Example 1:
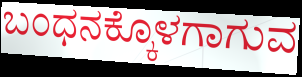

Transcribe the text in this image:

ಬಂಧನಕ್ಕೊಳಗಾಗುವ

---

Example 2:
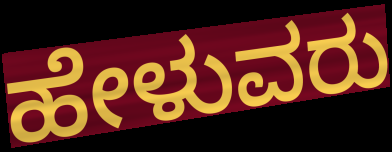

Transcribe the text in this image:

ಹೇಳುವರು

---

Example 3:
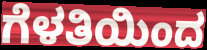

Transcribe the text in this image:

ಗೆಳತಿಯಿಂದ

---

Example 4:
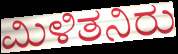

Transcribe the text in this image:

ಮಿಳಿತನಿರು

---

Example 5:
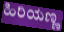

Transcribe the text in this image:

ಹಿರಿಯಣ್ಣ